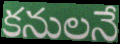
కనులనే